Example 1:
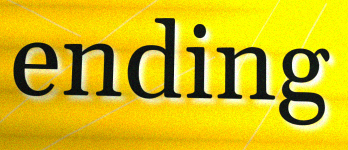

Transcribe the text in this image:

ending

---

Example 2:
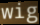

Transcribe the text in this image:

wig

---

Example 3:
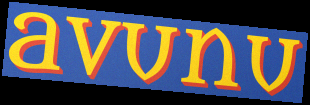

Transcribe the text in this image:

avunu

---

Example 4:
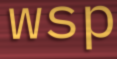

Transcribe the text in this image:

wsp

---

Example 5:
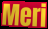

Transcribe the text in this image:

Meri